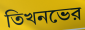
তিখনভের